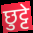
छुट्टे